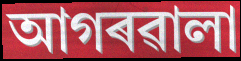
আগৰৱালা